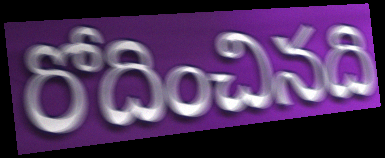
రోదించినది